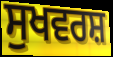
ਸੁਖਵਰਸ਼